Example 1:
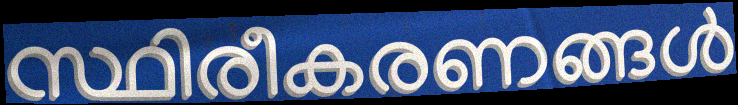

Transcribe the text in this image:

സ്ഥിരീകരണങ്ങൾ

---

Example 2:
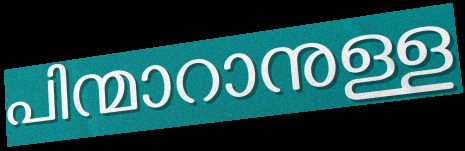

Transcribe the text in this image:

പിന്മാറാനുള്ള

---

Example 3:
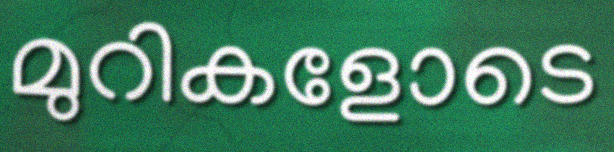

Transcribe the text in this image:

മുറികളോടെ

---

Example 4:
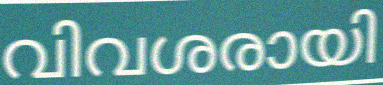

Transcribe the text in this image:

വിവശരായി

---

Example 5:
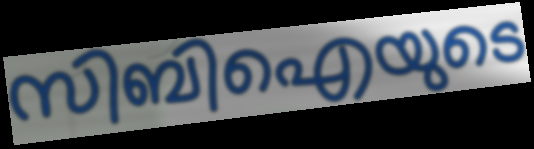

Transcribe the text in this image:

സിബിഐയുടെ